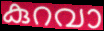
കുറവാ